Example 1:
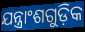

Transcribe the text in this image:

ଯନ୍ତ୍ରାଂଶଗୁଡ଼ିକ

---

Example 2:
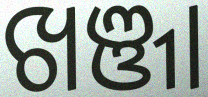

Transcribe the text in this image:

ଖଞ୍ଜା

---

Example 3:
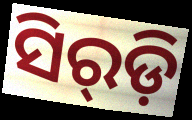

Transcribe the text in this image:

ସିର୍‌ଡ଼ି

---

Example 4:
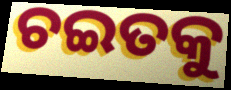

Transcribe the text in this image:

ଚଇତକୁ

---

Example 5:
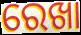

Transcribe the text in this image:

ରେଖା